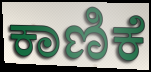
ಕಾಣಿಕೆ